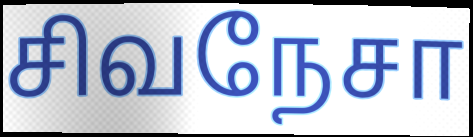
சிவநேசா